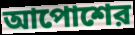
আপোশের